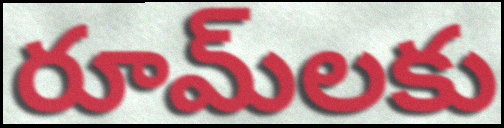
రూమ్‌లకు